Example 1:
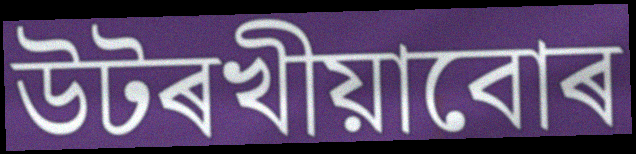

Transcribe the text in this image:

উটৰখীয়াবোৰ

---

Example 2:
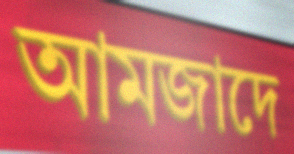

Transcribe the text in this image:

আমজাদে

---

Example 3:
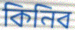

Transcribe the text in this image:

কিনিব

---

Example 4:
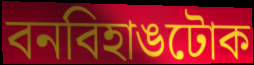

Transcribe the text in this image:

বনবিহাঙটোক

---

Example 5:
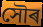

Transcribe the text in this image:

সৌৰ